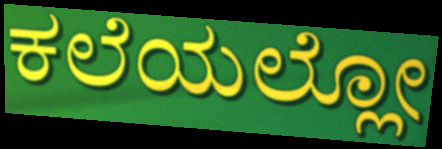
ಕಲೆಯಲ್ಲೋ